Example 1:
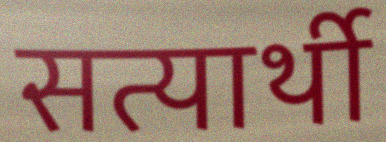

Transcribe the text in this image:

सत्यार्थी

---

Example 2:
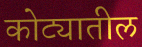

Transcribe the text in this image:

कोट्यातील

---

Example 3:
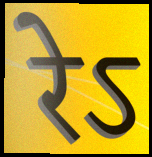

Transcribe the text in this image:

रेऽ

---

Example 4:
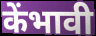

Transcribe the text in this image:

केंभावी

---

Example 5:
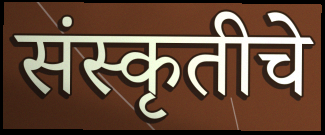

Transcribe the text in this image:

संस्कृतीचे